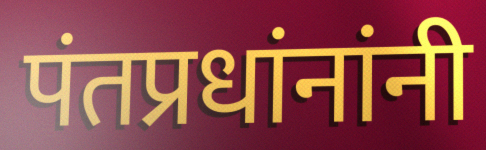
पंतप्रधांनांनी